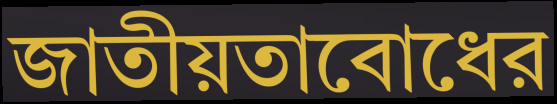
জাতীয়তাবোধের